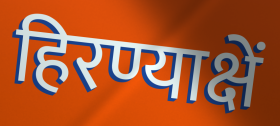
हिरण्याक्षें